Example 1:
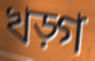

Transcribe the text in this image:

খড়্গ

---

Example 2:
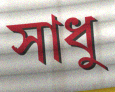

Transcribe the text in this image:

সাধু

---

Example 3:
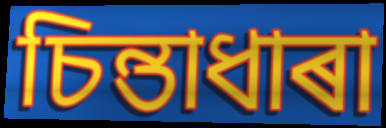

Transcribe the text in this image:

চিন্তাধাৰা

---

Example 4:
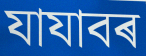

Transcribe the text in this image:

যাযাবৰ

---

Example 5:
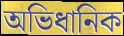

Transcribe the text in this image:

অভিধানিক